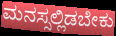
ಮನಸ್ಸಲ್ಲಿಡಬೇಕು